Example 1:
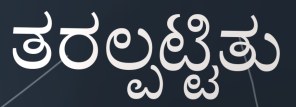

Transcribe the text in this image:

ತರಲ್ಪಟ್ಟಿತು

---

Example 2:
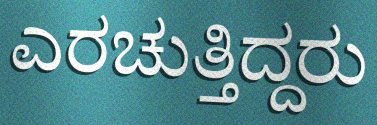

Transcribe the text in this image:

ಎರಚುತ್ತಿದ್ದರು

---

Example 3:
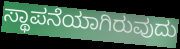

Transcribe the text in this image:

ಸ್ಥಾಪನೆಯಾಗಿರುವುದು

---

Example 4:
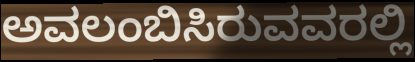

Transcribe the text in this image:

ಅವಲಂಬಿಸಿರುವವರಲ್ಲಿ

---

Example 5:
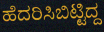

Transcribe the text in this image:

ಹೆದರಿಸಿಬಿಟ್ಟಿದ್ದ